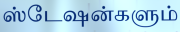
ஸ்டேஷன்களும்